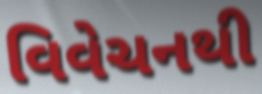
વિવેચનથી